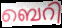
ബെറി